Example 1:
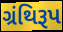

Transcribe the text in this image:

ગ્રંથિરૂપ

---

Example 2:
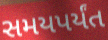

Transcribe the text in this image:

સમયપર્યંત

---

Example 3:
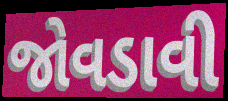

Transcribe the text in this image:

જોવડાવી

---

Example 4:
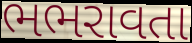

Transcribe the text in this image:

ભભરાવતા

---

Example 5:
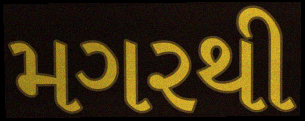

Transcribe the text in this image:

મગરથી